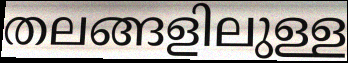
തലങ്ങളിലുള്ള